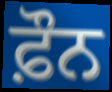
ਫ਼ੌਨ